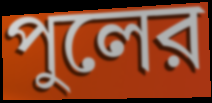
পুলের